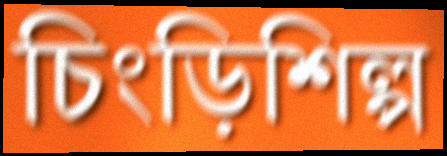
চিংড়িশিল্প